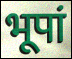
भूपां